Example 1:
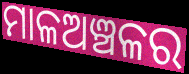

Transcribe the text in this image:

ମାଳଅଞ୍ଚଳର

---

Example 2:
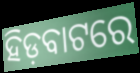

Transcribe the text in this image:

ହିଡ଼ବାଟରେ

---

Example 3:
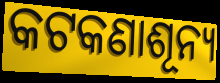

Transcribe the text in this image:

କଟକଣାଶୂନ୍ୟ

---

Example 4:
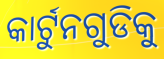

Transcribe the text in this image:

କାର୍ଟୁନଗୁଡିକୁ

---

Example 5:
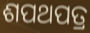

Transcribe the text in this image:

ଶପଥପତ୍ର